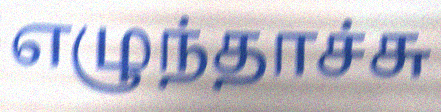
எழுந்தாச்சு